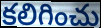
కలిగించు